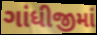
ગાંધીજીમાં